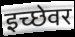
इच्छेवर